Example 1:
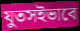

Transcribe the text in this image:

যুতসইভাবে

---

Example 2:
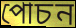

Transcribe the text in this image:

পোচন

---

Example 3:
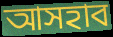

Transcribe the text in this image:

আসহাব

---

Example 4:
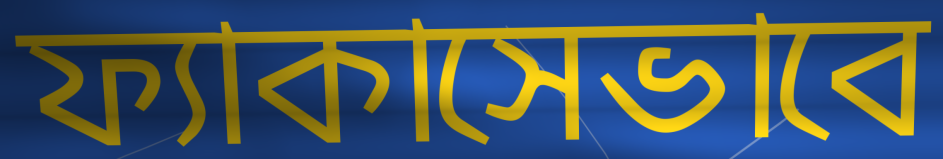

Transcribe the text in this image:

ফ্যাকাসেভাবে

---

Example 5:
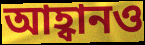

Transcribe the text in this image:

আহ্বানও